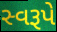
સ્વરૂપે